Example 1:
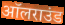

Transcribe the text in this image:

ऑलराउंड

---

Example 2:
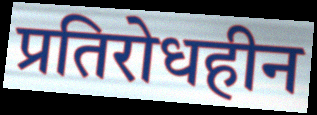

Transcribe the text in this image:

प्रतिरोधहीन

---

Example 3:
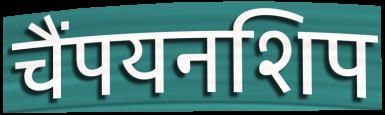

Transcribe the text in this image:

चैंपयनशिप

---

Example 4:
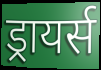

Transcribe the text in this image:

ड्रायर्स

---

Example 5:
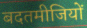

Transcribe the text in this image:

बदतमीजियों